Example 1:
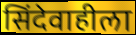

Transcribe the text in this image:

सिंदेवाहीला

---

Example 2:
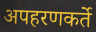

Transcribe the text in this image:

अपहरणकर्ते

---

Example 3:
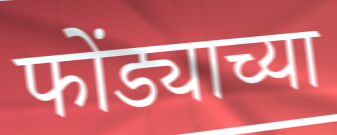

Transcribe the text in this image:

फोंड्याच्या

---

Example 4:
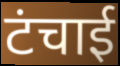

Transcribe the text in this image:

टंचाई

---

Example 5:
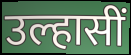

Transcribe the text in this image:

उल्हासीं